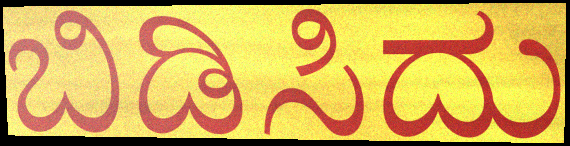
ಬಿಡಿಸಿದು